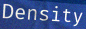
Density